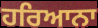
ਹਰਿਆਨਾ